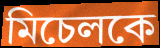
মিচেলকে